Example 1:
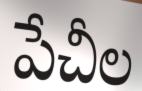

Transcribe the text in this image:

పేచీల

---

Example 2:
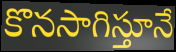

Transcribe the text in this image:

కొనసాగిస్తూనే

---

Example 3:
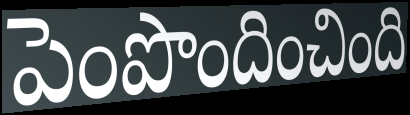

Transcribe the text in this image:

పెంపొందించింది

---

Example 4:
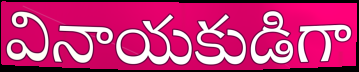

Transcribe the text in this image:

వినాయకుడిగా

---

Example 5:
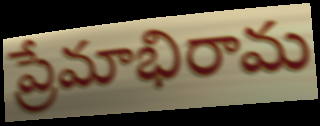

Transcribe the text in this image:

ప్రేమాభిరామ